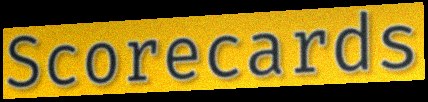
Scorecards